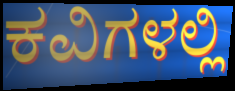
ಕವಿಗಳಲ್ಲಿ